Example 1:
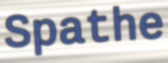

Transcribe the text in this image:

Spathe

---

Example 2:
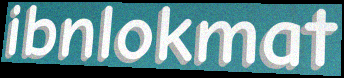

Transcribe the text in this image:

ibnlokmat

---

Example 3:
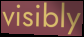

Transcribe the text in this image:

visibly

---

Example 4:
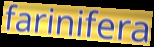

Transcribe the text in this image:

farinifera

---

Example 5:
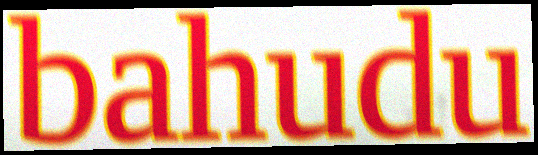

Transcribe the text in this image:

bahudu